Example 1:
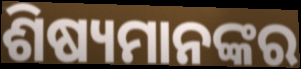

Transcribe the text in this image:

ଶିଷ୍ୟମାନଙ୍କର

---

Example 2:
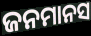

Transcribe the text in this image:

ଜନମାନସ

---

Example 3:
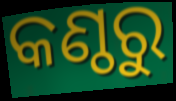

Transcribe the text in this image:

କଣ୍ଠରୁ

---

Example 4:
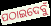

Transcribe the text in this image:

ପଠାଇଦେବୁଁ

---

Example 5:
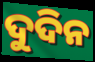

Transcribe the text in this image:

ଦୁଦିନ